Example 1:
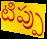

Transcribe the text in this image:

టిప్పు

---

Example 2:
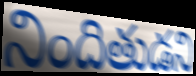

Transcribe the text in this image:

నిందితుడని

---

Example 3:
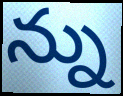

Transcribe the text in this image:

న్ను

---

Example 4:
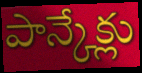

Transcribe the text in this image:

పాన్కేక్లు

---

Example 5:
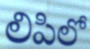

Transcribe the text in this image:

లిపిలో